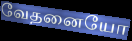
வேதனையோ